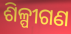
ଶିଳ୍ପୀଗଣ